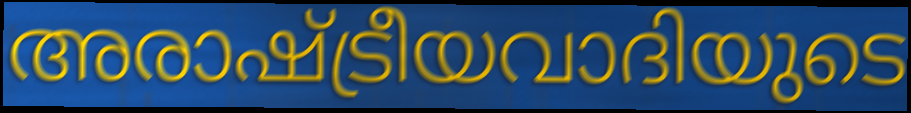
അരാഷ്ട്രീയവാദിയുടെ